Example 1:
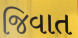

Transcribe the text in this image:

જિવાત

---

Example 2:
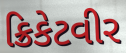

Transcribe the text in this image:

ક્રિકેટવીર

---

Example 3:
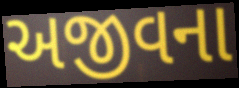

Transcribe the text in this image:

અજીવના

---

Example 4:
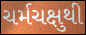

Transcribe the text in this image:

ચર્મચક્ષુથી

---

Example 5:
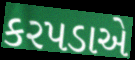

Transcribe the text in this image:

કરપડાએ